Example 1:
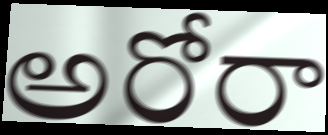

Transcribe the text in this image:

అరోరా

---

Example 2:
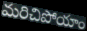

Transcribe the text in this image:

మరిచిపోయాం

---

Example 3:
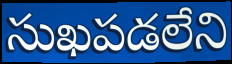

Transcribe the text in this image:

సుఖపడలేని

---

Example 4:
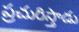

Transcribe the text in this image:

ప్రచురిస్తాడు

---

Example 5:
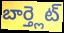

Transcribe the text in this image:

బార్త్లెట్